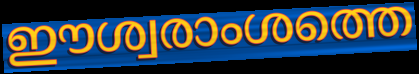
ഈശ്വരാംശത്തെ